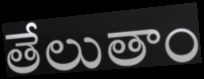
తేలుతాం